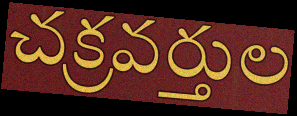
చక్రవర్తుల